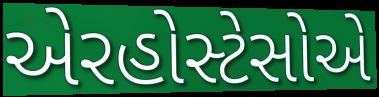
એરહોસ્ટેસોએ